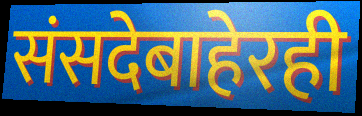
संसदेबाहेरही